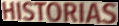
HISTORIAS